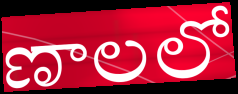
ణాలలో